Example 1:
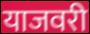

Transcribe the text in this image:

याजवरी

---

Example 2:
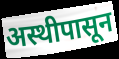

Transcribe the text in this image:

अस्थीपासून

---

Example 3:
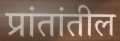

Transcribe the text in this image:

प्रांतांतील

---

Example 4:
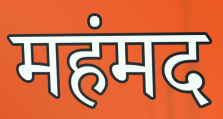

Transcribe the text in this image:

महंमद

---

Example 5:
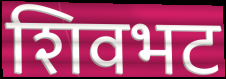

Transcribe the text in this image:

शिवभट